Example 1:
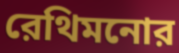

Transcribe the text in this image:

রেথিমনোর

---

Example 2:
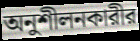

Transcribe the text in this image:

অনুশীলনকারীর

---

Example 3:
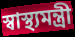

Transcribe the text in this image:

স্বাস্থ্যমন্ত্রী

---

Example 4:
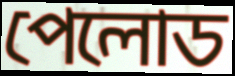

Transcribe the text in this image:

পেলোড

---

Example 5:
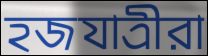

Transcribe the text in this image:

হজযাত্রীরা